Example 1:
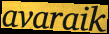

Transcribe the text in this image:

avaraik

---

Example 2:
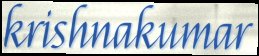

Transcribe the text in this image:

krishnakumar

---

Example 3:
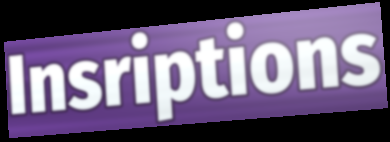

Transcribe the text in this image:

Insriptions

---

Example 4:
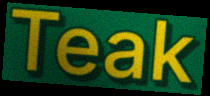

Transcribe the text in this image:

Teak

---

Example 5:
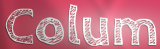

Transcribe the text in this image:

Colum